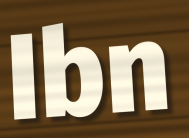
Ibn